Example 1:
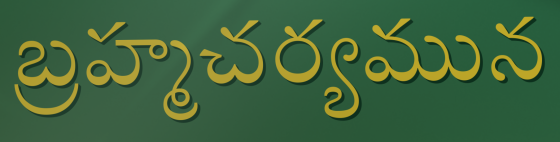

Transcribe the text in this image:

బ్రహ్మచర్యమున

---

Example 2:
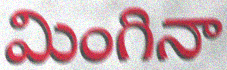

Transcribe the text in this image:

మింగినా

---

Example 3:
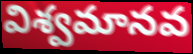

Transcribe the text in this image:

విశ్వమానవ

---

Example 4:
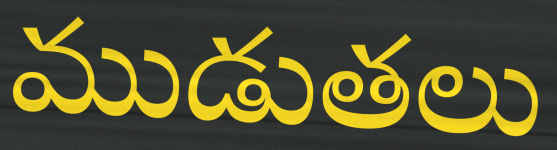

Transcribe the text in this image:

ముడుతలు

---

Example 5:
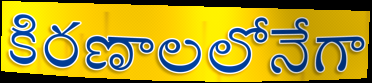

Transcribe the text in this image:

కిరణాలలోనేగా